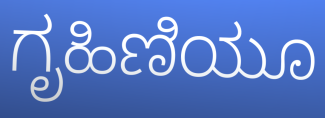
ಗೃಹಿಣಿಯೂ